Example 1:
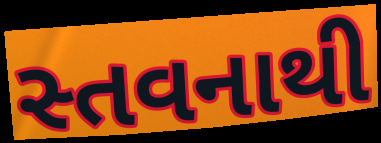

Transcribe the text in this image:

સ્તવનાથી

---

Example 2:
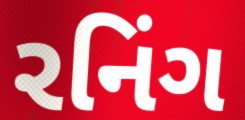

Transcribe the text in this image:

રનિંગ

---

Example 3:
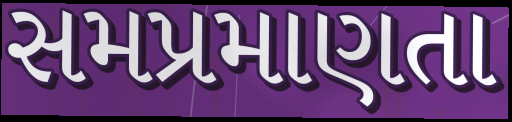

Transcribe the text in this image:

સમપ્રમાણતા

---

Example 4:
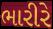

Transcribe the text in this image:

ભારીરે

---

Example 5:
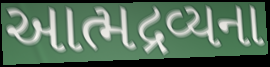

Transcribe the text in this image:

આત્મદ્રવ્યના